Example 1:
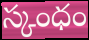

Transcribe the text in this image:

స్కంధం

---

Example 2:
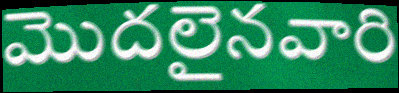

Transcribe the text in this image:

మొదలైనవారి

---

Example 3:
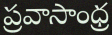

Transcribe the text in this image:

ప్రవాసాంధ్ర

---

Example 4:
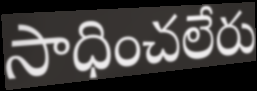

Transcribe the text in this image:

సాధించలేరు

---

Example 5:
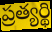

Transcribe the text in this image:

ప్రత్యర్థి